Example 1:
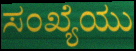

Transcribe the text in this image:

ಸಂಖ್ಯೆಯು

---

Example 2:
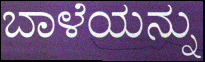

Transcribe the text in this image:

ಬಾಳೆಯನ್ನು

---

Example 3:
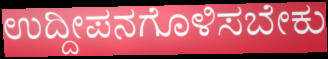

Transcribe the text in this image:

ಉದ್ದೀಪನಗೊಳಿಸಬೇಕು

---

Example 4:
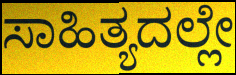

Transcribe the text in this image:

ಸಾಹಿತ್ಯದಲ್ಲೇ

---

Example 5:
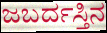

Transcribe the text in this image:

ಜಬರ್ದಸ್ತಿನ